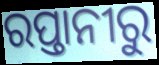
ରପ୍ତାନୀରୁ